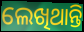
ଲେଖିଥାନ୍ତି